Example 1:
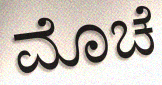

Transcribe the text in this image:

ಮೊಚೆ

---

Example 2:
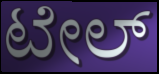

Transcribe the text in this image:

ಟೇಲ್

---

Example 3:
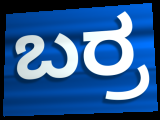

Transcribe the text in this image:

ಬರ್ರ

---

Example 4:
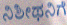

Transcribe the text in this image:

ನಿಶೀಥನಿಗೆ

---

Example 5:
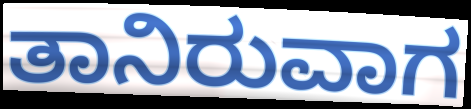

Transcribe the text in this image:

ತಾನಿರುವಾಗ